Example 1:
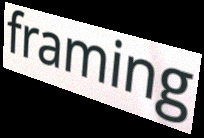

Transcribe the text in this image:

framing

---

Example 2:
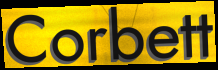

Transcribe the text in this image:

Corbett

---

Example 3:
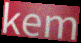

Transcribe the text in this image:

kem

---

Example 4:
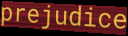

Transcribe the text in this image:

prejudice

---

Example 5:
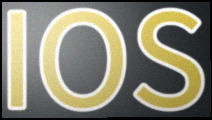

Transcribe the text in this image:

IOS